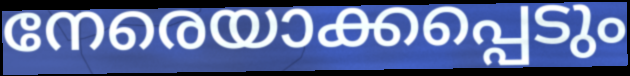
നേരെയാക്കപ്പെടും